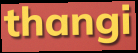
thangi